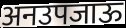
अनउपजाऊ